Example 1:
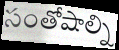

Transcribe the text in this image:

సంతోషాల్ని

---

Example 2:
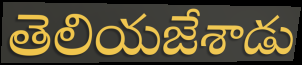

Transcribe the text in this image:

తెలియజేశాడు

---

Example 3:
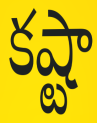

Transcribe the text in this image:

కష్టా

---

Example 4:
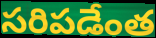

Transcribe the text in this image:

సరిపడేంత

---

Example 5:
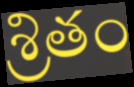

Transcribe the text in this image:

శ్రితం